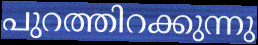
പുറത്തിറക്കുന്നു